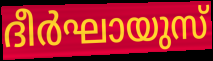
ദീർഘായുസ്